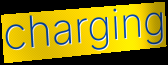
charging